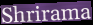
Shrirama